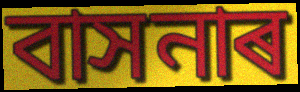
বাসনাৰ